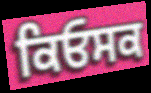
ਕਿਓਸਕ